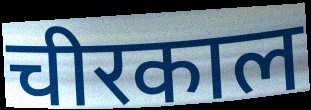
चीरकाल